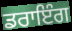
ਡਰਾਇੰਗ